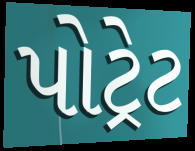
પોટ્રેટ